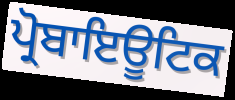
ਪ੍ਰੋਬਾਇਊਟਿਕ